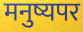
मनुष्यपर